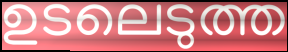
ഉടലെടുത്ത